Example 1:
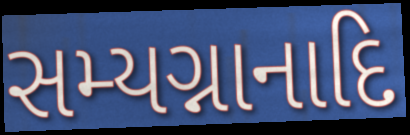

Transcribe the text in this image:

સમ્યગ્નાનાદિ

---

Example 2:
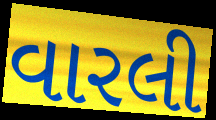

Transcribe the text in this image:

વારલી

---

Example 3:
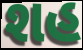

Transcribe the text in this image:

શહ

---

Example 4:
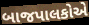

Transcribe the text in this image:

બાજપાલકોએ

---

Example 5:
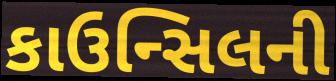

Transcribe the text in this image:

કાઉન્સિલની